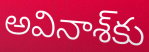
అవినాశ్‌కు